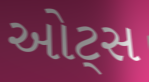
ઓટ્સ